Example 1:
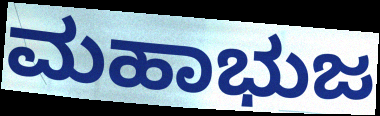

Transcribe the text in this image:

ಮಹಾಭುಜ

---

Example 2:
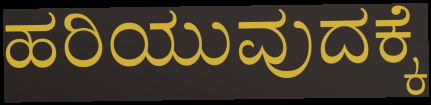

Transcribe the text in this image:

ಹರಿಯುವುದಕ್ಕೆ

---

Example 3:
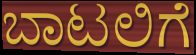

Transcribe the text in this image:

ಬಾಟಲಿಗೆ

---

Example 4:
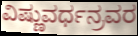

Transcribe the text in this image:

ವಿಷ್ಣುವರ್ಧನ್ರವರ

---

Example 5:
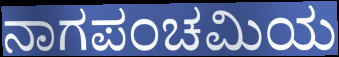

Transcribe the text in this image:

ನಾಗಪಂಚಮಿಯ